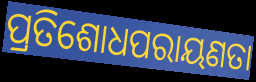
ପ୍ରତିଶୋଧପରାୟଣତା